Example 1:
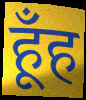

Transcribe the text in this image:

हूँह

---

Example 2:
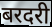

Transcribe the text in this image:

बरदरी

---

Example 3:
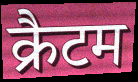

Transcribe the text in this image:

क्रैटम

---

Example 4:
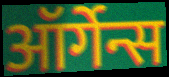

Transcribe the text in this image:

ऑर्गेन्स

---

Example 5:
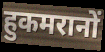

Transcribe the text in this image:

हुकमरानों